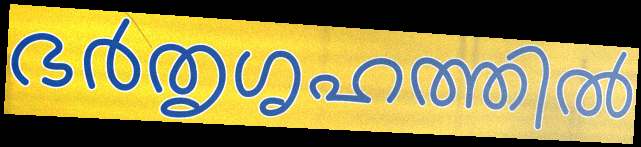
ഭർതൃഗൃഹത്തിൽ